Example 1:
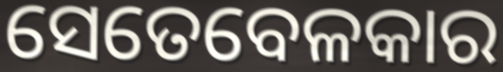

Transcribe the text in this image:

ସେତେବେଳକାର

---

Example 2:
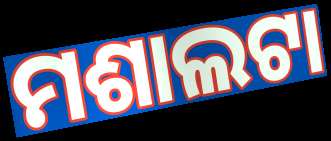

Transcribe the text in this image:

ମଶାଲଟା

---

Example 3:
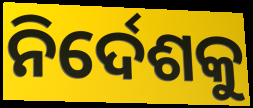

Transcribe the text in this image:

ନିର୍ଦେଶକୁ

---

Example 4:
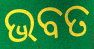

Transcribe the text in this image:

ଭବତ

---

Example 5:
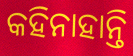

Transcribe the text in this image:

କହିନାହାନ୍ତି